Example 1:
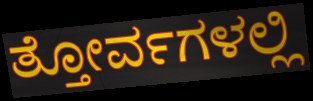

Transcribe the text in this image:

ತ್ತೋರ್ವಗಳಲ್ಲಿ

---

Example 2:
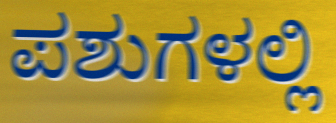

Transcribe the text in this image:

ಪಶುಗಳಲ್ಲಿ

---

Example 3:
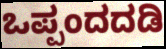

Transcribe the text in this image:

ಒಪ್ಪಂದದಡಿ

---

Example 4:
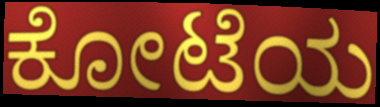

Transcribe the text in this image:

ಕೋಟೆಯ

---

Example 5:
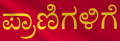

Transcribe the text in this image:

ಪ್ರಾಣಿಗಳಿಗೆ